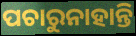
ପଚାରୁନାହାନ୍ତି